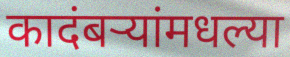
कादंबऱ्यांमधल्या